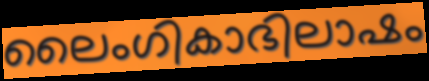
ലൈംഗികാഭിലാഷം